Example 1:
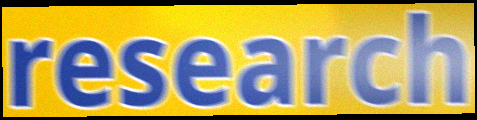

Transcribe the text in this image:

research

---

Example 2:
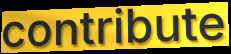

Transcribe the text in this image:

contribute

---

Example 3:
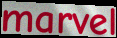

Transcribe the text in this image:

marvel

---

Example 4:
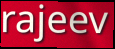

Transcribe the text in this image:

rajeev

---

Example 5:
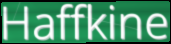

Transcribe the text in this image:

Haffkine